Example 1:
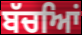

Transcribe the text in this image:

ਬੱਚਆਿਂ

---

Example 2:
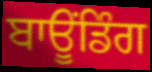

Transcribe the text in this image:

ਬਾਊਂਡਿੰਗ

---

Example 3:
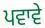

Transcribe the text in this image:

ਪਵਾਵੇ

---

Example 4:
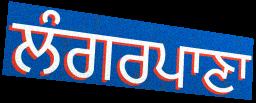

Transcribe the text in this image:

ਲੰਗਰਪਾਣਾ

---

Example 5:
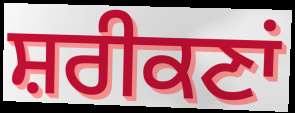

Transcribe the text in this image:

ਸ਼ਰੀਕਣਾਂ